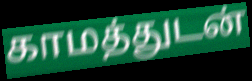
காமத்துடன்